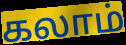
கலாம்